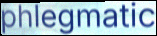
phlegmatic